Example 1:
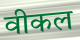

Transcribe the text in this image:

वीकल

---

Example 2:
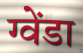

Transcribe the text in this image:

ग्वेंडा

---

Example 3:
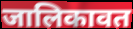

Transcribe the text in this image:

जालिकावत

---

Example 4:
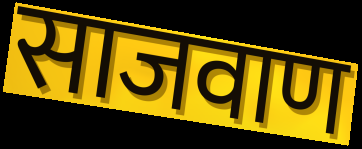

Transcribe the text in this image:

साजवाण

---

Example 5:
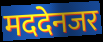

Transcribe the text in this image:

मददेनजर